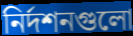
নির্দশনগুলো